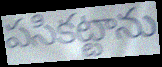
పసికట్టాను